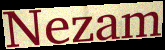
Nezam